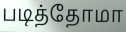
படித்தோமா